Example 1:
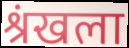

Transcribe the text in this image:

श्रंखला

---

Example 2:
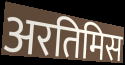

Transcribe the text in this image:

अरतिमिस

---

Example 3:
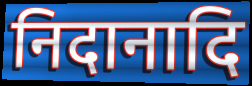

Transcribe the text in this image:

निदानादि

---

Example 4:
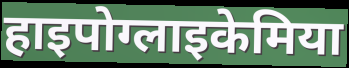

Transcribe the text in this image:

हाइपोग्लाइकेमिया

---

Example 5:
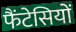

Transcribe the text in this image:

फैंटेसियों